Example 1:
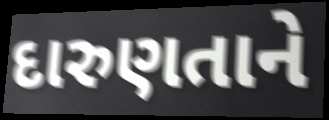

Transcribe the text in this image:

દારુણતાને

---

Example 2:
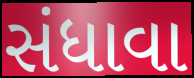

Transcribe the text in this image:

સંધાવા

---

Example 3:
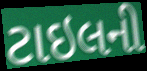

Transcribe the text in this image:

ટાઇલની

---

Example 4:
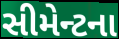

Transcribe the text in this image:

સીમેન્ટના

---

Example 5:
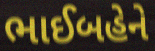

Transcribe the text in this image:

ભાઈબહેને